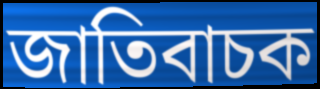
জাতিবাচক